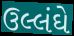
ઉલ્લંઘે